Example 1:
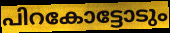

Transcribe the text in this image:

പിറകോട്ടോടും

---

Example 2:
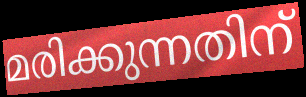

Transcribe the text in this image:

മരിക്കുന്നതിന്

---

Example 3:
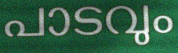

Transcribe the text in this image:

പാടവും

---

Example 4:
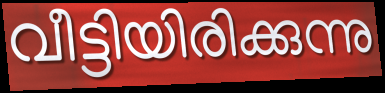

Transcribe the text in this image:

വീട്ടിയിരിക്കുന്നു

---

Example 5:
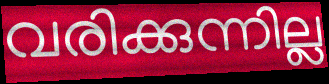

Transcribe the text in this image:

വരിക്കുന്നില്ല